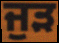
ਜੁੜ